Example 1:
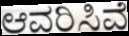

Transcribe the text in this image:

ಆವರಿಸಿವೆ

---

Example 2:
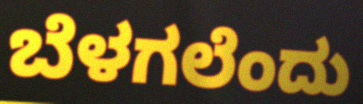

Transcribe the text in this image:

ಬೆಳಗಲೆಂದು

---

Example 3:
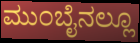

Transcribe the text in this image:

ಮುಂಬೈನಲ್ಲೂ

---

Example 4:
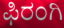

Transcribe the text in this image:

ಫಿರಂಗಿ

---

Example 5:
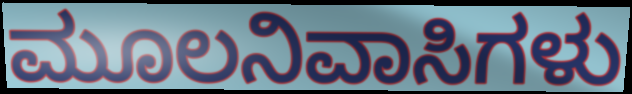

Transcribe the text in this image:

ಮೂಲನಿವಾಸಿಗಳು